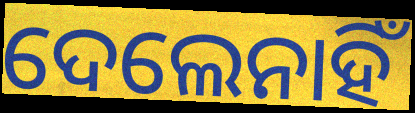
ଦେଲେନାହିଁ